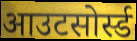
आउटसोर्स्ड